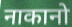
नाकानो